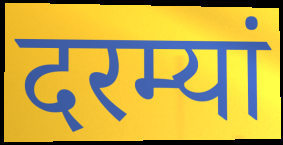
दरम्यां